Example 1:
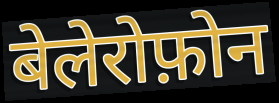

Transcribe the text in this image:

बेलेरोफ़ोन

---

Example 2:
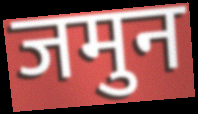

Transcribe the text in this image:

जमुन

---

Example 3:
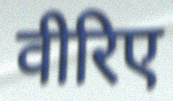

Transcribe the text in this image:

वीरिए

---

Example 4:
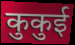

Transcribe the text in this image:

कुकुई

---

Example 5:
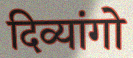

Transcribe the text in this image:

दिव्यांगो